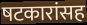
षटकारांसह